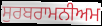
ਸੁਰਬਰਾਮਨੀਅਮ